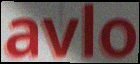
avlo